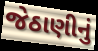
જેઠાણીનું